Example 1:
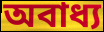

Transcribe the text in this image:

অবাধ্য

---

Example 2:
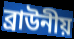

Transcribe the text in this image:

ব্ৰাউনীয়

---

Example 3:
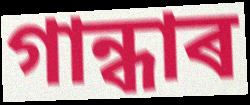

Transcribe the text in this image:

গান্ধাৰ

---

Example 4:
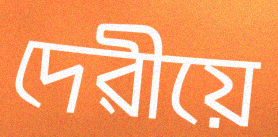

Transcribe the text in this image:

দেৱীয়ে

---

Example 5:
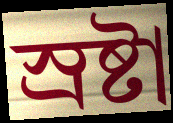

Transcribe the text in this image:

স্ৰষ্টা